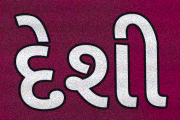
દેશી